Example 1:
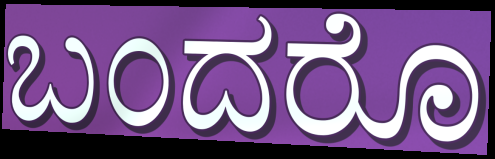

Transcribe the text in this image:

ಬಂದರೊ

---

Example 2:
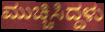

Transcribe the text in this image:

ಮುಚ್ಚಿಸಿದ್ದಳು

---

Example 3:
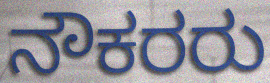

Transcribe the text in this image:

ನೌಕರರು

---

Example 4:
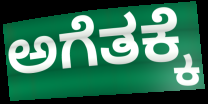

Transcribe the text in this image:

ಅಗೆತಕ್ಕೆ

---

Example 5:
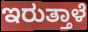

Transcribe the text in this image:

ಇರುತ್ತಾಳೆ